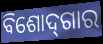
ବିଶୋଦ୍‌ଗାର